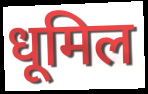
धूमिल